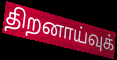
திறனாய்வுக்